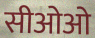
सीओओ